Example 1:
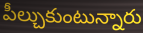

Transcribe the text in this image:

పీల్చుకుంటున్నారు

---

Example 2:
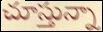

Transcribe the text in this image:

చూస్తున్నా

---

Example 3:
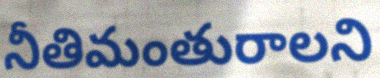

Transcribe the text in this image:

నీతిమంతురాలని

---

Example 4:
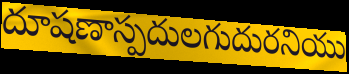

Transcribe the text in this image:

దూషణాస్పదులగుదురనియు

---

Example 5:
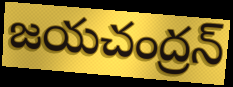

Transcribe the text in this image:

జయచంద్రన్